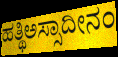
ಹತ್ಥಿಅಸ್ಸಾದೀನಂ